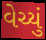
વેચ્યું